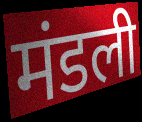
मंडली